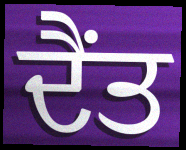
ਦੈਂਤ